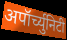
अपॉर्च्युनिटी